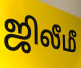
ஜிலீமீ